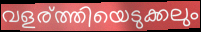
വളര്ത്തിയെടുക്കലും